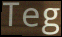
Teg